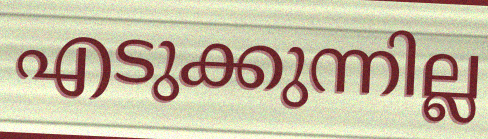
എടുക്കുന്നില്ല